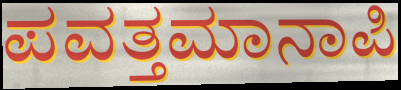
ಪವತ್ತಮಾನಾಪಿ